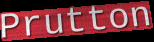
Prutton